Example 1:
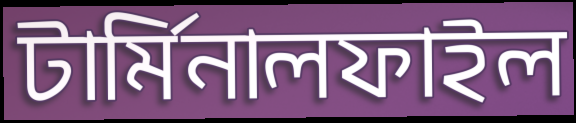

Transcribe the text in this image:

টার্মিনালফাইল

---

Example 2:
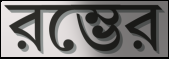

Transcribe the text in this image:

রম্ভের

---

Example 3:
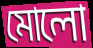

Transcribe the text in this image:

মোলো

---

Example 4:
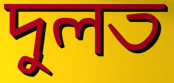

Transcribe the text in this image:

দুলত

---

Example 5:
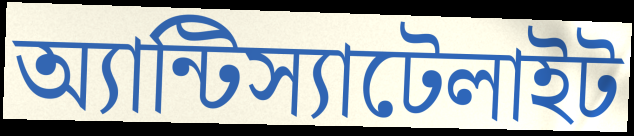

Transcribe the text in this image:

অ্যান্টিস্যাটেলাইট